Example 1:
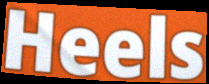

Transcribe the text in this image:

Heels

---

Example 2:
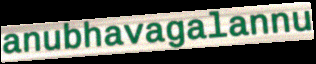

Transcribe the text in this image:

anubhavagalannu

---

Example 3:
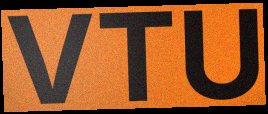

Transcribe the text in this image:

VTU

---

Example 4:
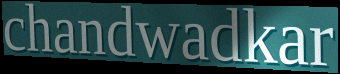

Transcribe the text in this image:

chandwadkar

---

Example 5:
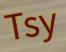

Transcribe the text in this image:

Tsy